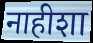
नाहीशा